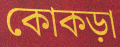
কোকড়া